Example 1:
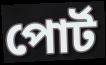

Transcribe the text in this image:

পোর্ট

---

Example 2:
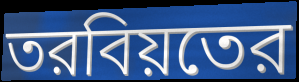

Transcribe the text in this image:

তরবিয়তের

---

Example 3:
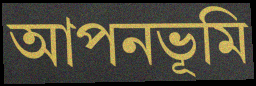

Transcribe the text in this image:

আপনভূমি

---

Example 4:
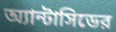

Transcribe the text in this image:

অ্যান্টাসিডের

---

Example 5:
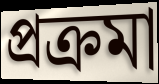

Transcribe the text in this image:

প্রক্রমা